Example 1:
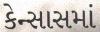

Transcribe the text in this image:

કેન્સાસમાં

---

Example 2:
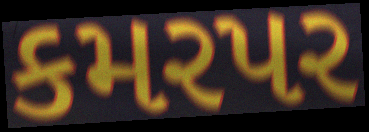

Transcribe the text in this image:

કમરપર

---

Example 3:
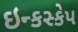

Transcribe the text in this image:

ઇન્કસ્કેપ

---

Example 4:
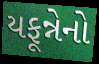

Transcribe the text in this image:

યફૂન્નેનો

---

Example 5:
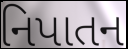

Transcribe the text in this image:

નિપાતન